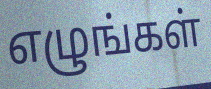
எழுங்கள்